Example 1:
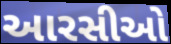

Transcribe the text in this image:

આરસીઓ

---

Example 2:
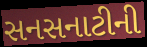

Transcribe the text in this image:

સનસનાટીની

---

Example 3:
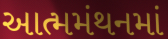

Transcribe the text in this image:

આત્મમંથનમાં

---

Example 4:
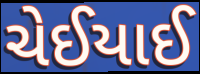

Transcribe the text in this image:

ચેઈયાઈ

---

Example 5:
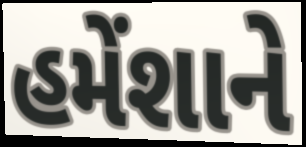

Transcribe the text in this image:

હમેંશાને